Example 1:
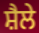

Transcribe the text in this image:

ਸ਼ੈਲੇ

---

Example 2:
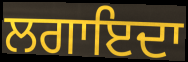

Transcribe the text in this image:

ਲਗਾਇਦਾ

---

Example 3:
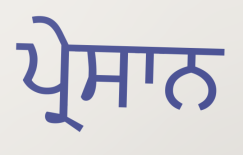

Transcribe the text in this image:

ਪ੍ਰੇਸਾਨ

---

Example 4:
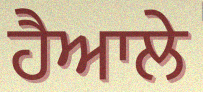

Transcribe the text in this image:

ਹੈਆਲੇ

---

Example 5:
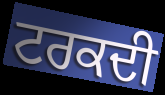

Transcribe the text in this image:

ਟਰਕਦੀ